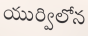
యుర్విలోన